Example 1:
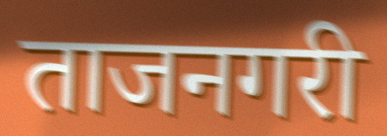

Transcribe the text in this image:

ताजनगरी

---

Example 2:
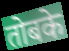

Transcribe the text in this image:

तोबके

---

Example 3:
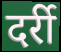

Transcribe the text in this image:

दर्री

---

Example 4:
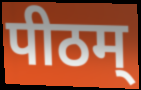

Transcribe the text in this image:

पीठम्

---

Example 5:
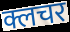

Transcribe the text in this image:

क्लचर